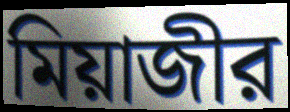
মিয়াজীর